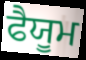
ਫੈਯੂਮ